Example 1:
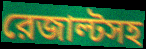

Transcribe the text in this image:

রেজাল্টসহ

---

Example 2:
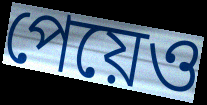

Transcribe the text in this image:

পেয়েও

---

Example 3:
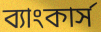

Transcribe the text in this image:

ব্যাংকার্স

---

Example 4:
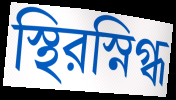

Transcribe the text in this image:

স্থিরস্নিগ্ধ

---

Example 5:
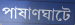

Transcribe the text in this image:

পাষাণঘাটে